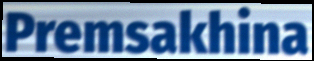
Premsakhina